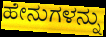
ಹೇನುಗಳನ್ನು